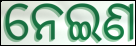
ନେଇଣ